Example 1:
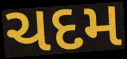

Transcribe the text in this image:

ચદમ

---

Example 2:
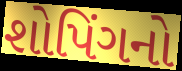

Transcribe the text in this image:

શોપિંગનો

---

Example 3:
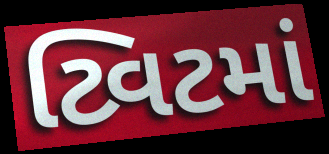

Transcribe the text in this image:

ટ્વિટમાં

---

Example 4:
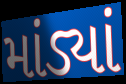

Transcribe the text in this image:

માંડ્યાં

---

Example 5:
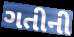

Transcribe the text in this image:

ગતીની